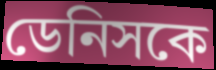
ডেনিসকে